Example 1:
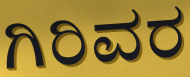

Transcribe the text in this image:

ಗಿರಿವರ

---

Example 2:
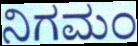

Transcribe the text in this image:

ನಿಗಮಂ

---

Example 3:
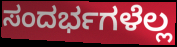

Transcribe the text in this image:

ಸಂದರ್ಭಗಳೆಲ್ಲ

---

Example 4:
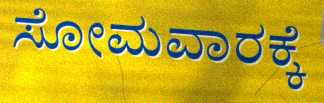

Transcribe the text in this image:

ಸೋಮವಾರಕ್ಕೆ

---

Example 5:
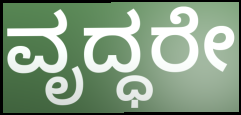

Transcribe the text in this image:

ವೃದ್ಧರೇ